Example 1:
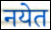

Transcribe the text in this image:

नयेत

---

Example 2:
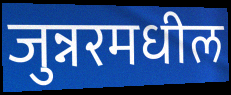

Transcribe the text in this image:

जुन्नरमधील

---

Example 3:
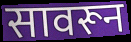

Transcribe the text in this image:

सावरून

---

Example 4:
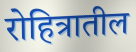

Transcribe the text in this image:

रोहित्रातील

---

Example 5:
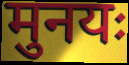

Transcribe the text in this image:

मुनयः